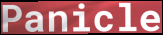
Panicle